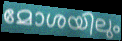
മോശയിലും